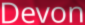
Devon